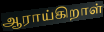
ஆராய்கிறாள்